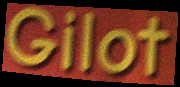
Gilot